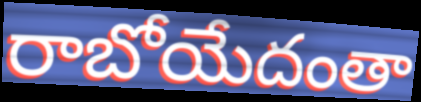
రాబోయేదంతా